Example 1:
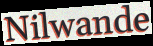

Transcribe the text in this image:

Nilwande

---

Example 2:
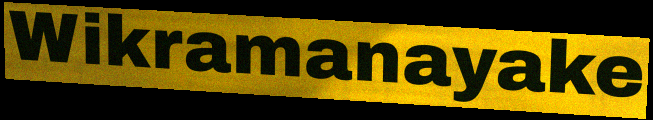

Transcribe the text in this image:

Wikramanayake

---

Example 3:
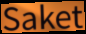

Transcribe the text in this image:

Saket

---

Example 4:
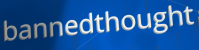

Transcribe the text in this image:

bannedthought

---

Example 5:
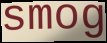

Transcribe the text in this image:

smog